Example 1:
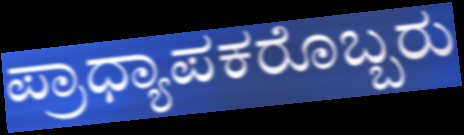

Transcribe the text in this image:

ಪ್ರಾಧ್ಯಾಪಕರೊಬ್ಬರು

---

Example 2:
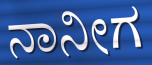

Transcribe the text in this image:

ನಾನೀಗ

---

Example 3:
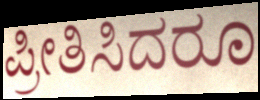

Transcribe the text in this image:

ಪ್ರೀತಿಸಿದರೂ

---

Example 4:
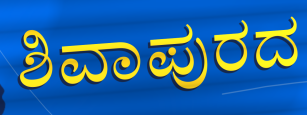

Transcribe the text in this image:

ಶಿವಾಪುರದ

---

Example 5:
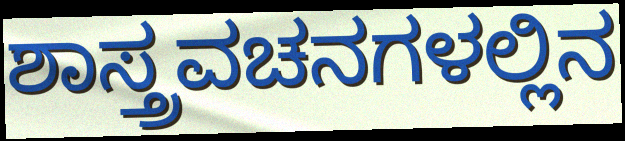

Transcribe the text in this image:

ಶಾಸ್ತ್ರವಚನಗಳಲ್ಲಿನ